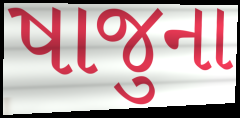
ષાજુના